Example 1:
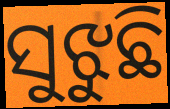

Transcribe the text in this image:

ସୁଝୁଛି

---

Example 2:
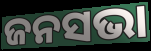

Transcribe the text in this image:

ଜନସଭା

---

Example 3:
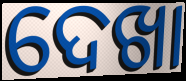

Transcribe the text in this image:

ଦେଖା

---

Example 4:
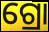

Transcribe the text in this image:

ଗ୍ରୋ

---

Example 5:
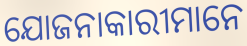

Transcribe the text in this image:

ଯୋଜନାକାରୀମାନେ